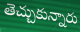
తెచ్చుకున్నారు